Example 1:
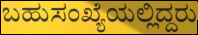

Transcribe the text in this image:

ಬಹುಸಂಖ್ಯೆಯಲ್ಲಿದ್ದರು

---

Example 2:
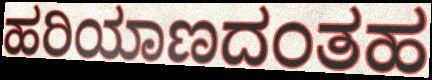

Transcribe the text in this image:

ಹರಿಯಾಣದಂತಹ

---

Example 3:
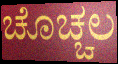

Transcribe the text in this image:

ಚೊಚ್ಚಲ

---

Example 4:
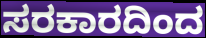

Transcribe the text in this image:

ಸರಕಾರದಿಂದ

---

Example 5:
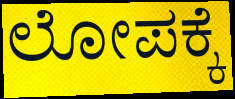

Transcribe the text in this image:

ಲೋಪಕ್ಕೆ